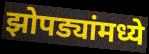
झोपड्यांमध्ये